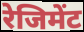
रेजिमेंट